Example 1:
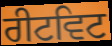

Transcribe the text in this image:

ਰੀਟਵਿਟ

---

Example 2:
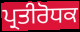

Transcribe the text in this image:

ਪ੍ਰਤੀਰੋਧਕ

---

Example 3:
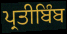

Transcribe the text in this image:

ਪ੍ਰਤੀਬਿੰਬ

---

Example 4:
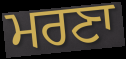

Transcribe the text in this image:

ਮਰਣਾ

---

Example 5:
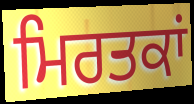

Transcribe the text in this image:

ਮਿਰਤਕਾਂ